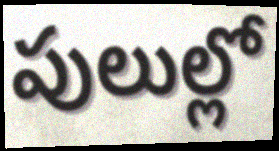
పులుల్లో